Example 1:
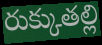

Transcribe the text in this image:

రుక్కుతల్లి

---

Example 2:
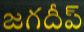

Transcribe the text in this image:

జగదీప్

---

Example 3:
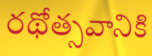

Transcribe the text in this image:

రథోత్సవానికి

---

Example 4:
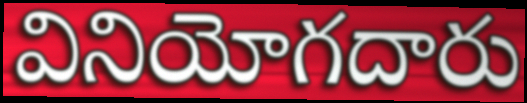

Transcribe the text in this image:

వినియోగదారు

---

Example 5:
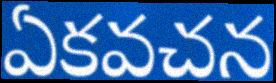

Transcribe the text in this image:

ఏకవచన